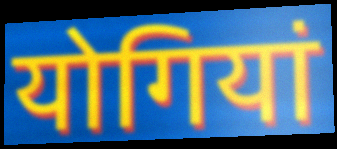
योगियां